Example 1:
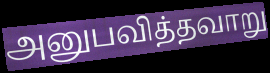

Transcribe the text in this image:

அனுபவித்தவாறு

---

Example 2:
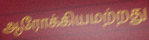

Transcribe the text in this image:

ஆரோக்கியமற்றது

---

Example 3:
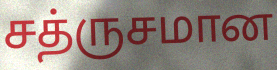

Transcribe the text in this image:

சத்ருசமான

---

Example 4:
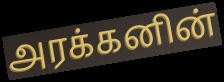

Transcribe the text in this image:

அரக்கனின்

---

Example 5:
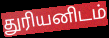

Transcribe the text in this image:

துரியனிடம்